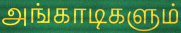
அங்காடிகளும்